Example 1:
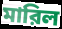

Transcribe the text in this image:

মারিল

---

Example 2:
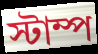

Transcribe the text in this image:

স্টাম্প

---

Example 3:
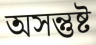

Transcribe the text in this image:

অসন্তুষ্ট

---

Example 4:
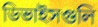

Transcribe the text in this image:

ডিভাইসগুলি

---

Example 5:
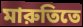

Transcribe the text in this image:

মারুতিতে